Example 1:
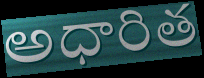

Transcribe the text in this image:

అధారిత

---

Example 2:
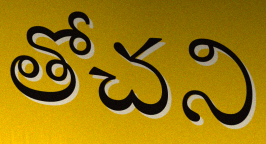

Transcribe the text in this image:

తోచని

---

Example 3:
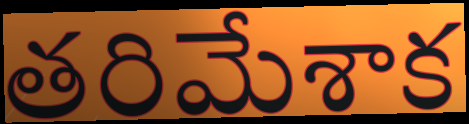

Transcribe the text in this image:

తరిమేశాక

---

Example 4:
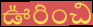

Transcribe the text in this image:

ఊరించి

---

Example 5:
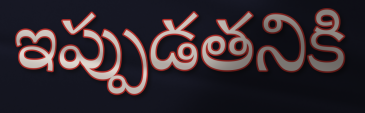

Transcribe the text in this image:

ఇప్పుడతనికి